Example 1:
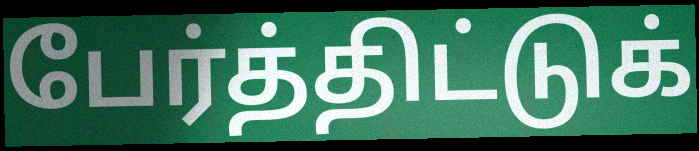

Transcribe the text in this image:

பேர்த்திட்டுக்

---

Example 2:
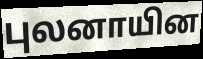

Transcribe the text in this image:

புலனாயின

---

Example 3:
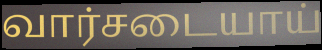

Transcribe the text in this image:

வார்சடையாய்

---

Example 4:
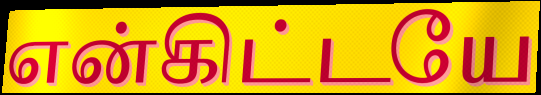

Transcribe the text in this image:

என்கிட்டயே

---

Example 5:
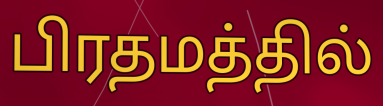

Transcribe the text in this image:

பிரதமத்தில்